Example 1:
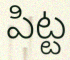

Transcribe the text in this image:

పిట్ట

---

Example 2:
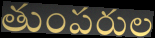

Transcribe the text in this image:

తుంపరుల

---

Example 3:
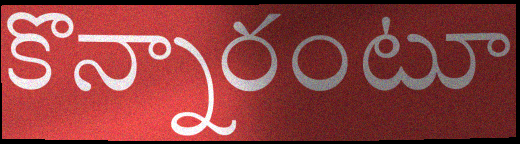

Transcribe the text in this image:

కొన్నారంటూ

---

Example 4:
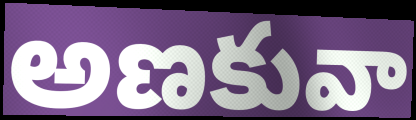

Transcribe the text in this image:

అణకువా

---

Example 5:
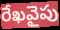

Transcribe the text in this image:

రేఖవైపు